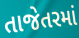
તાજેતરમાં